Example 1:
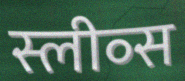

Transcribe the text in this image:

स्लीव्स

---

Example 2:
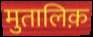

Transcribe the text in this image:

मुतालिक़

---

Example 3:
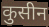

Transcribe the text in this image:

कुसीन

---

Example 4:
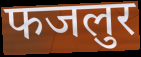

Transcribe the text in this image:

फजलुर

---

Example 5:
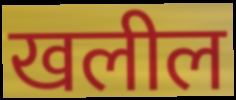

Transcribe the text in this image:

खलील